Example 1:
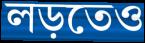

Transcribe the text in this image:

লড়তেও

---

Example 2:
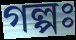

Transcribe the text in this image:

গল্পঃ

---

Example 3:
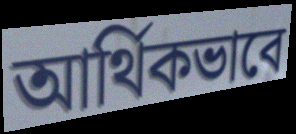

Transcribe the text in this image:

আর্থিকভাবে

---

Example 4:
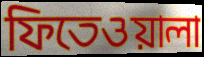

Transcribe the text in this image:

ফিতেওয়ালা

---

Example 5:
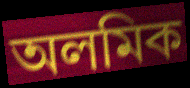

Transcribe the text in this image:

অলমিক